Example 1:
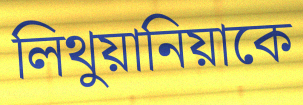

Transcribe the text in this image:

লিথুয়ানিয়াকে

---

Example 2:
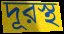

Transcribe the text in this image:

দূরস্থ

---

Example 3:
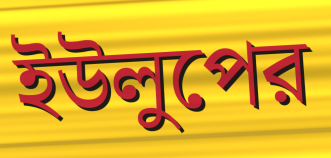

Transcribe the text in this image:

ইউলুপের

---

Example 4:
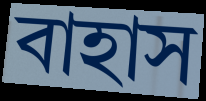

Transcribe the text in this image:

বাহাস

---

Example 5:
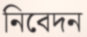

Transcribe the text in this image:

নিবেদন